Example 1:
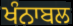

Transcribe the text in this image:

ਖੰਨਾਬਲ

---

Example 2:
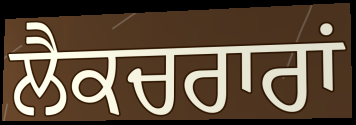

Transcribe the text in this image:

ਲੈਕਚਰਾਰਾਂ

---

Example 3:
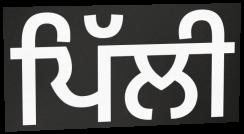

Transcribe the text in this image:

ਪਿੱਲੀ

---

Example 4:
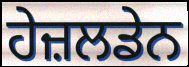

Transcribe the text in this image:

ਹੇਜ਼ਲਡੇਨ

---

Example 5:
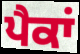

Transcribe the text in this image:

ਪੈਕਾਂ